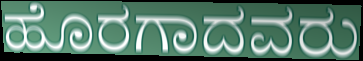
ಹೊರಗಾದವರು